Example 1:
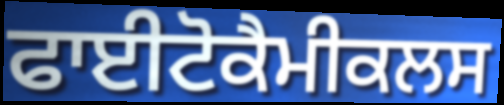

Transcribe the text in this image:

ਫਾਈਟੋਕੈਮੀਕਲਸ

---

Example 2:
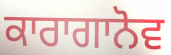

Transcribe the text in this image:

ਕਾਰਾਗਾਨੋਵ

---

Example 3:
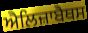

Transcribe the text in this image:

ਐਲਿਜ਼ਾਬੈਥਸ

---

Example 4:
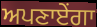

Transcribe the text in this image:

ਅਪਣਾਏਂਗਾ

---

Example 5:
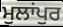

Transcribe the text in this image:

ਮੁਲਾਂਪੁਰ